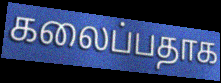
கலைப்பதாக